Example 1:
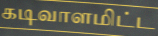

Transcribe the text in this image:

கடிவாளமிட்ட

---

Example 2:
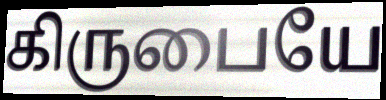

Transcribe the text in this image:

கிருபையே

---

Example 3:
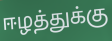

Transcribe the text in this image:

ஈழத்துக்கு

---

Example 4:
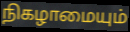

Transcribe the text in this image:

நிகழாமையும்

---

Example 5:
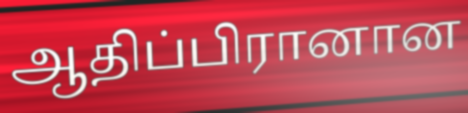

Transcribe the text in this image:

ஆதிப்பிரானான